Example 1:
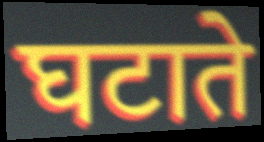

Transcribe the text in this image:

घटाते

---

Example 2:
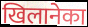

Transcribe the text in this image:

खिलानेका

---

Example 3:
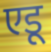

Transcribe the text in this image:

एडू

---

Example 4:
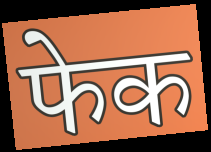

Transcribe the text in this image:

फेक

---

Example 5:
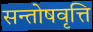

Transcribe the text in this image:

सन्तोषवृत्ति